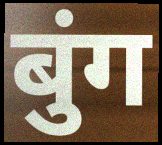
बुंग